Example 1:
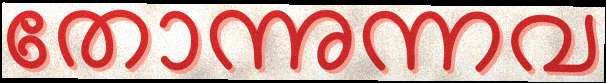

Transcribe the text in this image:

തോന്നുന്നവ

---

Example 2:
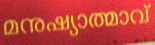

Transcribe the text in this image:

മനുഷ്യാത്മാവ്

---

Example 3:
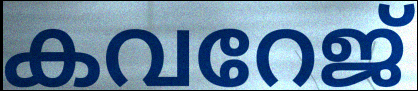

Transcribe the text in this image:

കവറേജ്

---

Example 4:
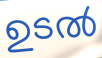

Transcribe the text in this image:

ഉടൽ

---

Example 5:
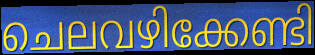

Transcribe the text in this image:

ചെലവഴിക്കേണ്ടി